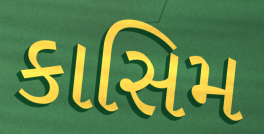
કાસિમ